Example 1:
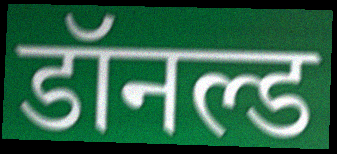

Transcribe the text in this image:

डॉनल्ड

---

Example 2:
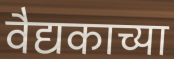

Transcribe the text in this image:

वैद्यकाच्या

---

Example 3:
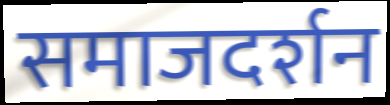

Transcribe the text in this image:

समाजदर्शन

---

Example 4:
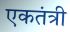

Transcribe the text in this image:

एकतंत्री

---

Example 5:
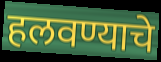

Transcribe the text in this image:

हलवण्याचे